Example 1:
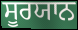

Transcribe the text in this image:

ਸੂਰਯਾਨ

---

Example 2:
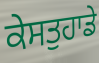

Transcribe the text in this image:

ਕੇਸਤੁਹਾਡੇ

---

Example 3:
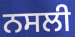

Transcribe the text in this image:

ਨਸਲੀ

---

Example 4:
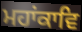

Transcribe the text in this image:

ਮਹਾਂਕਾਵਿ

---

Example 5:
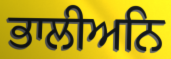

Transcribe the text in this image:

ਭਾਲੀਅਨਿ